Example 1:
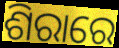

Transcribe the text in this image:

ଶିରାରେ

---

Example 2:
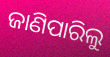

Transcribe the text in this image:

ଜାଣିପାରିଲୁ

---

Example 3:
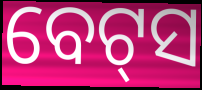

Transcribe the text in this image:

ବେଟ୍‌ସ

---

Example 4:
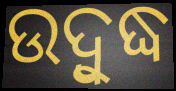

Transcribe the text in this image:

ଉଦ୍ୱୁଦ୍ଧ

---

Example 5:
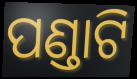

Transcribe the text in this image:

ପଣ୍ଡାଟି